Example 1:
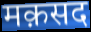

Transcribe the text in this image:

मक़सद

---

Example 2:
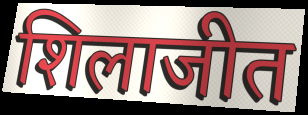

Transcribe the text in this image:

शिलाजीत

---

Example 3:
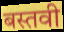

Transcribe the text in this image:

बस्तवी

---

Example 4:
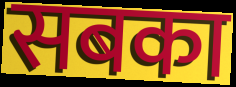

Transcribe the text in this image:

सबका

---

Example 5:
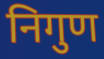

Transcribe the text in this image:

निगुण